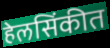
हेलसिंकीत